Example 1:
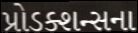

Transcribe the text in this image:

પ્રોડક્શન્સના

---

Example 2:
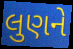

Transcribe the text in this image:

લુણને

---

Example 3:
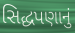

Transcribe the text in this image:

સિદ્ધપણાનું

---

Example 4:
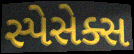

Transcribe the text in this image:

સ્પેસેક્સ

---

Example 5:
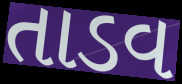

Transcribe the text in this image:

તાડવ